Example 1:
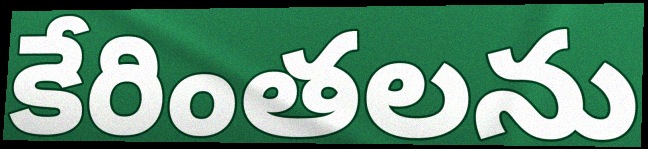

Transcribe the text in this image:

కేరింతలను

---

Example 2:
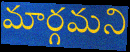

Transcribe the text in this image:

మార్గమని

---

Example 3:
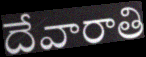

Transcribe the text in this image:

దేవారాతి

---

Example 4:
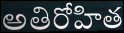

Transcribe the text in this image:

అతిరోహిత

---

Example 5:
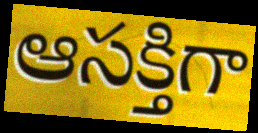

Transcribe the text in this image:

ఆసక్తిగా